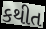
કથીત